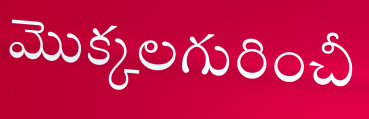
మొక్కలగురించీ